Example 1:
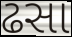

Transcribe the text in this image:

ઢસા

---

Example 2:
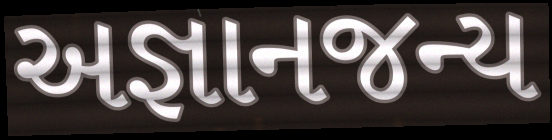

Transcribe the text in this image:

અજ્ઞાનજન્ય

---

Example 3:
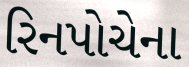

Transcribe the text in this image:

રિનપોચેના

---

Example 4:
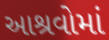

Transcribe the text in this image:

આશ્રવોમાં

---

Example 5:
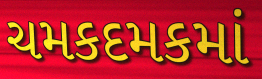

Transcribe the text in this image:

ચમકદમકમાં